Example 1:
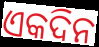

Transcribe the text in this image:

ଏକଦିନ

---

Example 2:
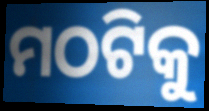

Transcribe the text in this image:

ମଠଟିକୁ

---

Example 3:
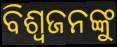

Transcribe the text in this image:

ବିଶ୍ୱଜନଙ୍କୁ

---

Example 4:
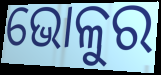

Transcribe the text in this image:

ଭୋଳୁର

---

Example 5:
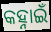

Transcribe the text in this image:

କହ୍ନାଇଁ